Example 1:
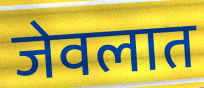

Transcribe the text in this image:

जेवलात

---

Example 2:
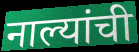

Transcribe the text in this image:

नाल्यांची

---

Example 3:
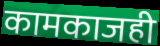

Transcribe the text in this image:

कामकाजही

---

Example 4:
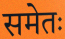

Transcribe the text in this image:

समेतः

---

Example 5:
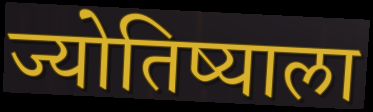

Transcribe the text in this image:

ज्योतिष्याला